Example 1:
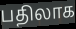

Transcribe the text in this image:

பதிலாக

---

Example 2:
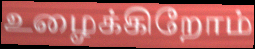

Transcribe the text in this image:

உழைக்கிறோம்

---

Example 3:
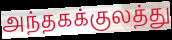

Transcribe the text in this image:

அந்தகக்குலத்து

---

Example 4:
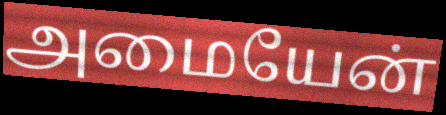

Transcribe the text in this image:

அமையேன்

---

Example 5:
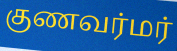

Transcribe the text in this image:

குணவர்மர்